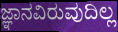
ಜ್ಞಾನವಿರುವುದಿಲ್ಲ